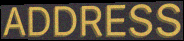
ADDRESS